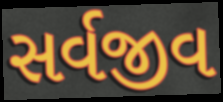
સર્વજીવ